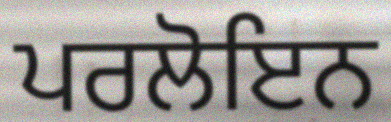
ਪਰਲੋਇਨ